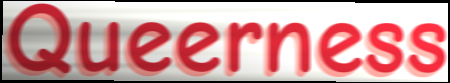
Queerness